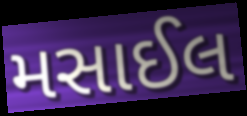
મસાઈલ